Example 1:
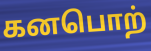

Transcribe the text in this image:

கனபொற்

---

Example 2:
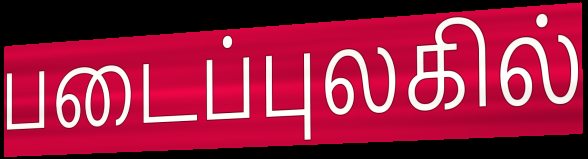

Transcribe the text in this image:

படைப்புலகில்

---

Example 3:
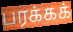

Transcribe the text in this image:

பரக்கக்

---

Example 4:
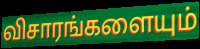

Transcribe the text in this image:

விசாரங்களையும்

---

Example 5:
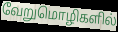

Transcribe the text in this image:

வேறுமொழிகளில்